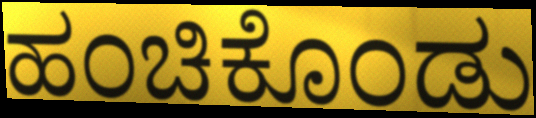
ಹಂಚಿಕೊಂಡು